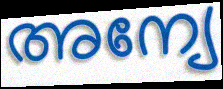
അന്യേ